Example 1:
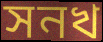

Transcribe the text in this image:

সনখ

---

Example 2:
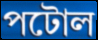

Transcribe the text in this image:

পটোল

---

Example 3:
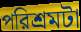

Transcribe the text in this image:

পরিশ্রমটা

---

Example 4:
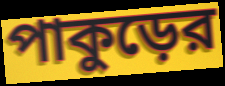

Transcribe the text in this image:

পাকুড়ের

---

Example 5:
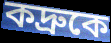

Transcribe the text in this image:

কদ্রুকে